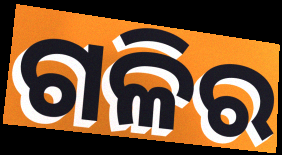
ଗଳିର